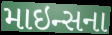
માઇન્સના